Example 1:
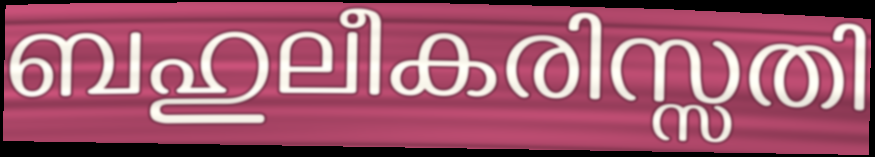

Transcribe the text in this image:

ബഹുലീകരിസ്സതി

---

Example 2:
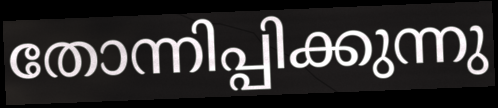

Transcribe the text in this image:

തോന്നിപ്പിക്കുന്നു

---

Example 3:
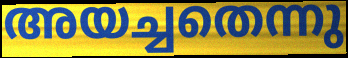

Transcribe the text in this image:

അയച്ചതെന്നു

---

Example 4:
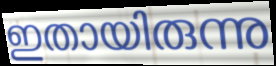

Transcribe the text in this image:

ഇതായിരുന്നു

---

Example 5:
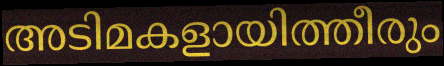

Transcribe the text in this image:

അടിമകളായിത്തീരും